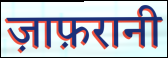
ज़ाफ़रानी